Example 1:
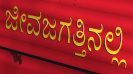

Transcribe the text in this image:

ಜೀವಜಗತ್ತಿನಲ್ಲಿ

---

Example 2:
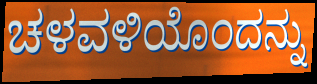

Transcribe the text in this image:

ಚಳವಳಿಯೊಂದನ್ನು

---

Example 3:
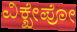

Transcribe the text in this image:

ವಿಕ್ಖೇಪೋ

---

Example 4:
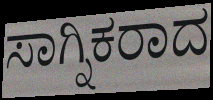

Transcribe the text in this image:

ಸಾಗ್ನಿಕರಾದ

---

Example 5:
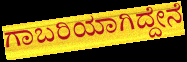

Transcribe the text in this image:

ಗಾಬರಿಯಾಗಿದ್ದೇನೆ